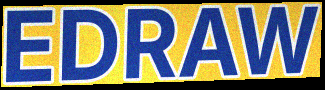
EDRAW